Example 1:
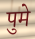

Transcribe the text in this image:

पुमे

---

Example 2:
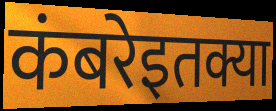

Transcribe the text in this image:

कंबरेइतक्या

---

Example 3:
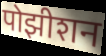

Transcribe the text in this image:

पोझीशन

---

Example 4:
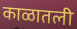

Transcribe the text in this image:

काळातली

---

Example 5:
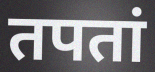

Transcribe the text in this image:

तपतां